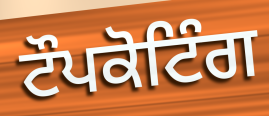
ਟੌਪਕੋਟਿੰਗ